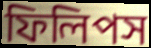
ফিলিপস